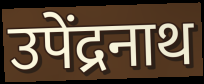
उपेंद्रनाथ